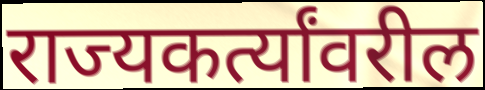
राज्यकर्त्यांवरील